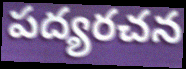
పద్యరచన